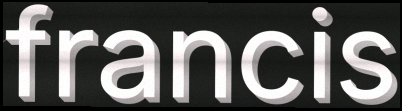
francis